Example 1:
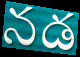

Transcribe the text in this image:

నడ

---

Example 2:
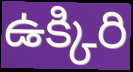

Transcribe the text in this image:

ఉక్కిరి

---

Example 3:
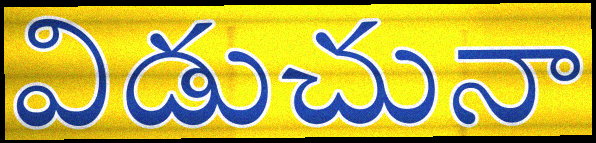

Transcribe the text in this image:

విడుచునా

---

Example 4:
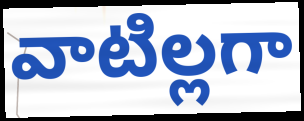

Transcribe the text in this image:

వాటిల్లగా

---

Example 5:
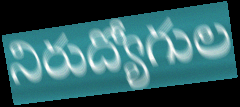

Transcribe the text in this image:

నిరుద్యోగుల